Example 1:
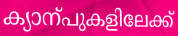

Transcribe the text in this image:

ക്യാന്പുകളിലേക്ക്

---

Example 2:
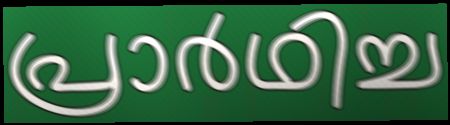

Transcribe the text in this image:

പ്രാർഥിച്ച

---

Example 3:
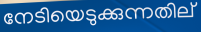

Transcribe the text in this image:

നേടിയെടുക്കുന്നതില്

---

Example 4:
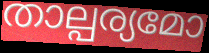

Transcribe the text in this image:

താല്പര്യമോ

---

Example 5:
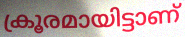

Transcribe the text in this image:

ക്രൂരമായിട്ടാണ്